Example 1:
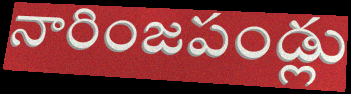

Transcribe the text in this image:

నారింజపండ్లు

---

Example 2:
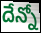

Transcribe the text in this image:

దేన్నో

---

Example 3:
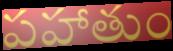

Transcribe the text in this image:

పహాతుం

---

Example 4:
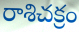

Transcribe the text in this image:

రాశిచక్రం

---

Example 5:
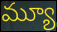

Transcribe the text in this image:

మ్యూ